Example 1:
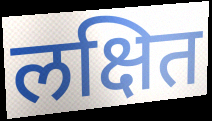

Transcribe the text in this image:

लक्षित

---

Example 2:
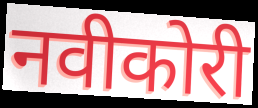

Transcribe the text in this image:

नवीकोरी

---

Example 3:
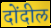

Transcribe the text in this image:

दोंदील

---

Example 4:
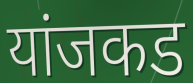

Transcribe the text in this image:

यांजकड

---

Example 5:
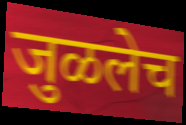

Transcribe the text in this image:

जुळलेच